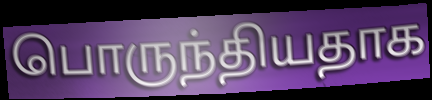
பொருந்தியதாக